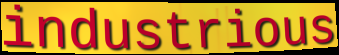
industrious